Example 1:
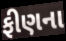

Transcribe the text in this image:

ફીણના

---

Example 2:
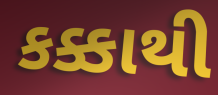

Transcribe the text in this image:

કક્કાથી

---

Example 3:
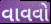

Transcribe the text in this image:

વાવવો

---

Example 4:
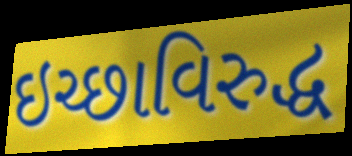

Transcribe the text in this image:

ઇચ્છાવિરુદ્ધ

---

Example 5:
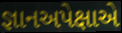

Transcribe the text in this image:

જ્ઞાનઅપેક્ષાએ